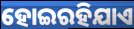
ହୋଇରହିଯାଏ